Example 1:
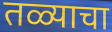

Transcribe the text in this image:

तळ्याचा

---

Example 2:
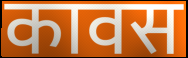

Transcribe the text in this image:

कावस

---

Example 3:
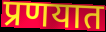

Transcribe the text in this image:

प्रणयात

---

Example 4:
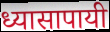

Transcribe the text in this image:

ध्यासापायी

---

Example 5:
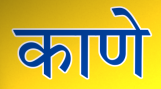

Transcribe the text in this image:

काणे